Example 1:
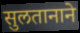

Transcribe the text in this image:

सुलतानाने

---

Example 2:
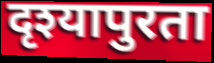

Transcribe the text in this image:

दृश्यापुरता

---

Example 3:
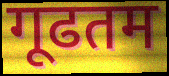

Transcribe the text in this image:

गूढतम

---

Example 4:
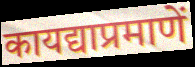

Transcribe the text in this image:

कायद्याप्रमाणें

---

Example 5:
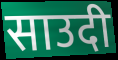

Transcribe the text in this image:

साउदी